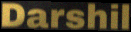
Darshil